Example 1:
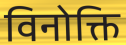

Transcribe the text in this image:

विनोक्ति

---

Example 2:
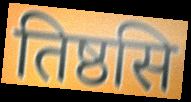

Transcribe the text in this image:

तिष्ठसि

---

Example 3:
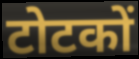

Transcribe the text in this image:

टोटकों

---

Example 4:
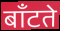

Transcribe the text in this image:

बाँटते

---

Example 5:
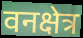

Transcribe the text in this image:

वनक्षेत्र